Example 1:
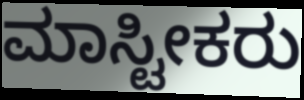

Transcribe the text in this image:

ಮಾಸ್ಟೀಕರು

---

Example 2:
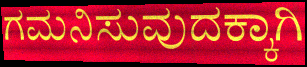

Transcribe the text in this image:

ಗಮನಿಸುವುದಕ್ಕಾಗಿ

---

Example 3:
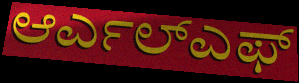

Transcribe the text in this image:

ಆರ್ಎಲ್ಎಫ್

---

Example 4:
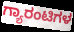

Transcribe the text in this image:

ಗ್ಯಾರಂಟಿಗಳ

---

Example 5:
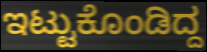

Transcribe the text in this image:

ಇಟ್ಟುಕೊಂಡಿದ್ದ